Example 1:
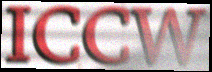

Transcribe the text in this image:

ICCW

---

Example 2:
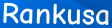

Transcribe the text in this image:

Rankusa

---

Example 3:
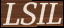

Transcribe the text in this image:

LSIL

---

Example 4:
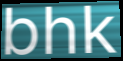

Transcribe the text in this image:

bhk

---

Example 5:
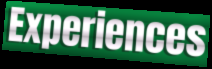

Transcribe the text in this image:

Experiences